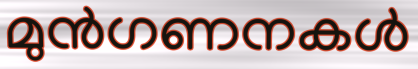
മുൻഗണനകൾ